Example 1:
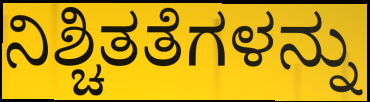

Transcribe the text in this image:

ನಿಶ್ಚಿತತೆಗಳನ್ನು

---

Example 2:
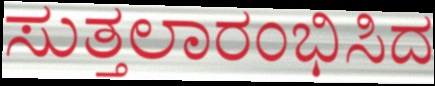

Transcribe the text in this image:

ಸುತ್ತಲಾರಂಭಿಸಿದ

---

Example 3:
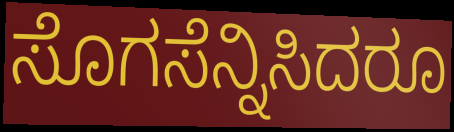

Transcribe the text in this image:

ಸೊಗಸೆನ್ನಿಸಿದರೂ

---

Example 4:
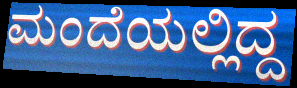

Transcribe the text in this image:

ಮಂದೆಯಲ್ಲಿದ್ದ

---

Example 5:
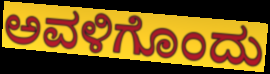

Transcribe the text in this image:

ಅವಳಿಗೊಂದು